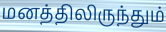
மனத்திலிருந்தும்